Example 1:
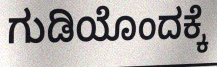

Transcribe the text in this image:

ಗುಡಿಯೊಂದಕ್ಕೆ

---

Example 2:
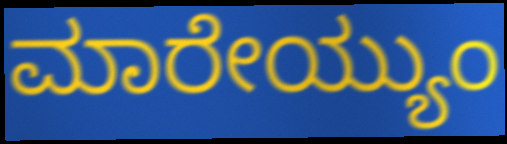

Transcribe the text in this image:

ಮಾರೇಯ್ಯುಂ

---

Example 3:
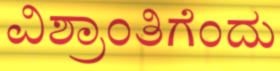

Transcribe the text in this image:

ವಿಶ್ರಾಂತಿಗೆಂದು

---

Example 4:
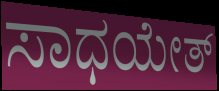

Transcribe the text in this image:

ಸಾಧಯೇತ್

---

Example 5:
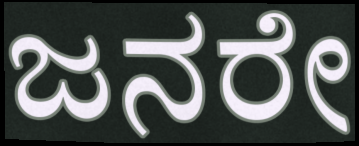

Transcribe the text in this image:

ಜನರೇ